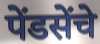
पेंडसेंचे